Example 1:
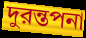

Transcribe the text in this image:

দুরন্তপনা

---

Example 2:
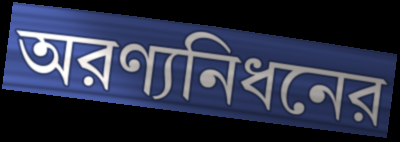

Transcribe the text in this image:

অরণ্যনিধনের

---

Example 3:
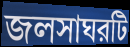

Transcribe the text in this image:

জলসাঘরটি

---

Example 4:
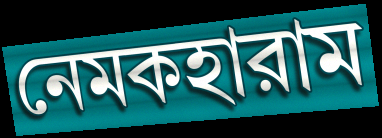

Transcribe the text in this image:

নেমকহারাম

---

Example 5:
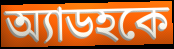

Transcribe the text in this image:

অ্যাডহকে